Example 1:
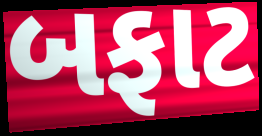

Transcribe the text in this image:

બફાટ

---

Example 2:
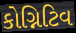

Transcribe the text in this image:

કોગ્નિટિવ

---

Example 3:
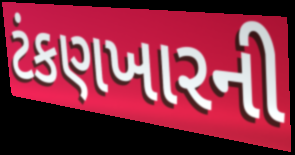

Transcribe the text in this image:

ટંકણખારની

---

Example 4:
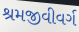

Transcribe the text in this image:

શ્રમજીવીવર્ગ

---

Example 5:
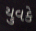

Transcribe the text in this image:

યુવકે